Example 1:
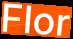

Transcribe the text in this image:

Flor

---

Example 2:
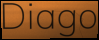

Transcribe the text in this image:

Diago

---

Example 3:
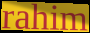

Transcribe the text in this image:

rahim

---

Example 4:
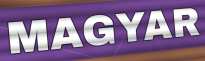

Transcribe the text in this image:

MAGYAR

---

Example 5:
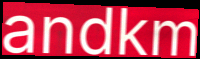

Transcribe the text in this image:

andkm